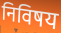
निविषय